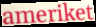
ameriket